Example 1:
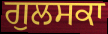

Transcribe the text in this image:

ਗੁਲਸਕਾ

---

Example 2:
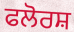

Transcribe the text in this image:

ਫਲੋਰਸ਼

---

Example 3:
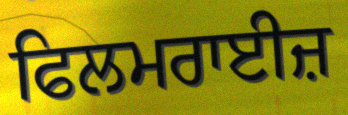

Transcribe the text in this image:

ਫਿਲਮਰਾਈਜ਼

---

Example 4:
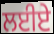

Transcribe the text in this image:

ਲਈਏ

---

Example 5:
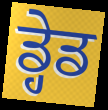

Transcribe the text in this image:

ਡ੍ਹੇਡ